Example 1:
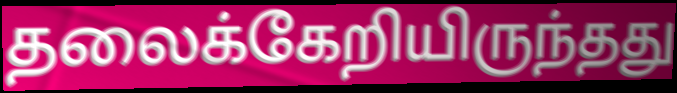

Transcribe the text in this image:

தலைக்கேறியிருந்தது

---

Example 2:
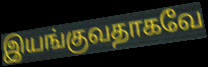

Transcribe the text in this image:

இயங்குவதாகவே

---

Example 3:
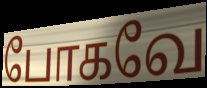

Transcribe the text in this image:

போகவே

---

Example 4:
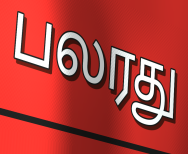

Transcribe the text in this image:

பலரது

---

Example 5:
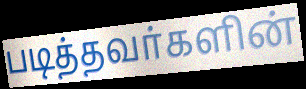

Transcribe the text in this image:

படித்தவர்களின்